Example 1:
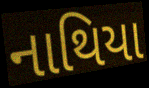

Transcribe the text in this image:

નાથિયા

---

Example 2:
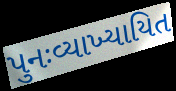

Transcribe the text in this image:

પુનઃવ્યાખ્યાયિત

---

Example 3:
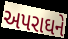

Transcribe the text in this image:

અપરાઘને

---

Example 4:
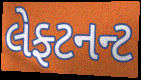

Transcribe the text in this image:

લેફ્ટનન્ટ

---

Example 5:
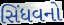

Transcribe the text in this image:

સિંધવનો